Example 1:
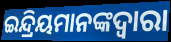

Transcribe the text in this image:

ଇନ୍ଦ୍ରିୟମାନଙ୍କଦ୍ୱାରା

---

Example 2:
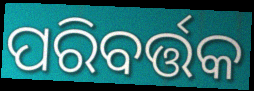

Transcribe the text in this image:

ପରିବର୍ତ୍ତକ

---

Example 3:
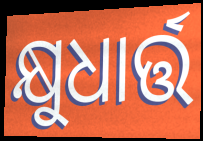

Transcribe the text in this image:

କ୍ଷୁଧାର୍ତ୍ତ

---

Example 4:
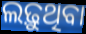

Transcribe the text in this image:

ଲଢ଼ୁଥିବା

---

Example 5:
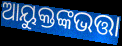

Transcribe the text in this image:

ଆୟୁକ୍ତଙ୍କଭତ୍ତା